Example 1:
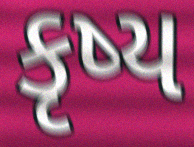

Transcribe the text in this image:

કૃષ્ય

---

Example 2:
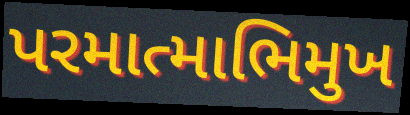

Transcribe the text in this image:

પરમાત્માભિમુખ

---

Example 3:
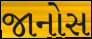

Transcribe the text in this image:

જાનોસ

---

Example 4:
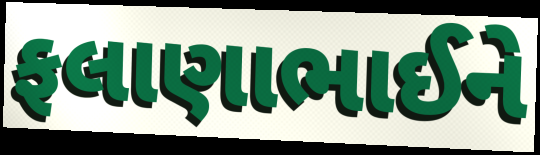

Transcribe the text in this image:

ફલાણાભાઈને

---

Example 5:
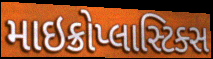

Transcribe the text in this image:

માઇક્રોપ્લાસ્ટિક્સ